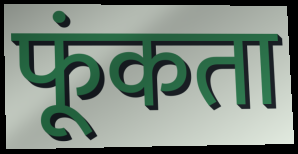
फूंकता